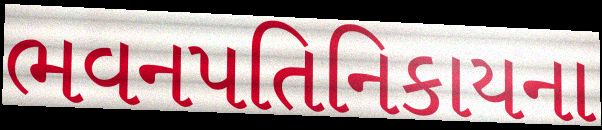
ભવનપતિનિકાયના